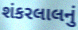
શંકરલાલનું